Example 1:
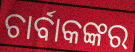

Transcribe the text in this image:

ଚାର୍ବାକଙ୍କର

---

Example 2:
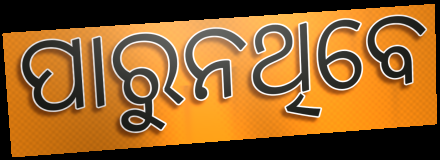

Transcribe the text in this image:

ପାରୁନଥିବେ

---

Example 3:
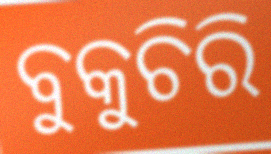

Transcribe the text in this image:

ବୁକୁଚିରି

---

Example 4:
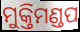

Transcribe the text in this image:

ମୁକ୍ତିମଣ୍ଡପ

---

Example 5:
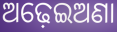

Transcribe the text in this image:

ଅଢ଼େଇଅଣା